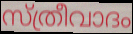
സ്ത്രീവാദം